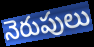
నెరుపులు